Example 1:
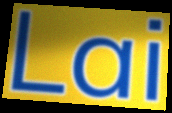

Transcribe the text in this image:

Lai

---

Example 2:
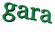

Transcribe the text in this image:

gara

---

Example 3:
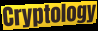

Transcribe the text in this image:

Cryptology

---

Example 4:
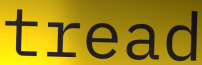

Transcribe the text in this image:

tread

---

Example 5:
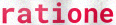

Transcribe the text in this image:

ratione